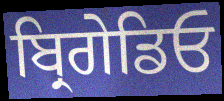
ਬ੍ਰਿਗੇਡਿਓ